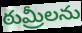
ఠుమ్రీలను